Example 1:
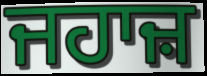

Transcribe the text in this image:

ਜਹਾਜ਼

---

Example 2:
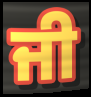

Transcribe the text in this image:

ਜੀ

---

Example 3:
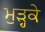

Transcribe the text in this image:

ਮੁੜ੍ਹਕੇ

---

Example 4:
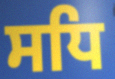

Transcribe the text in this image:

ਸਧਿ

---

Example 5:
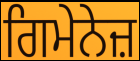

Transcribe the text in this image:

ਗਿਮੇਨੇਜ਼